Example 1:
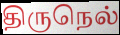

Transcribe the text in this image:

திருநெல்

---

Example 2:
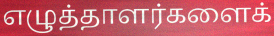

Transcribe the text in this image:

எழுத்தாளர்களைக்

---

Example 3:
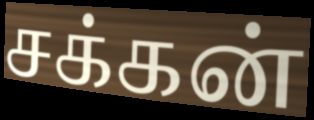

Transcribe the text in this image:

சக்கன்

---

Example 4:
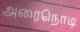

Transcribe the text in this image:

அரைநொடி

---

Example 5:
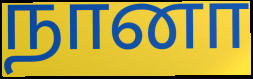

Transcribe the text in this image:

நானா